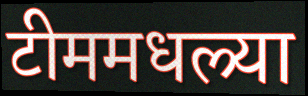
टीममधल्या